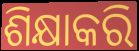
ଶିକ୍ଷାକରି